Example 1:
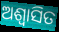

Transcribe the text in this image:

ଅଶ୍ୱାସିତ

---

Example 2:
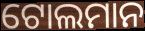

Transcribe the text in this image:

ଟୋଲମାନ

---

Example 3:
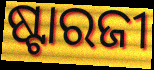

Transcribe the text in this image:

ଷ୍ଟାରଜୀ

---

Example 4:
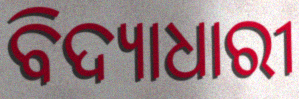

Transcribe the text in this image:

ବିଦ୍ୟାଧାରୀ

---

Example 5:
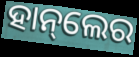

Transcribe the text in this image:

ହାନ୍‌ଲେର